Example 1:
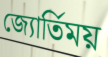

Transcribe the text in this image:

জ্যোর্তিময়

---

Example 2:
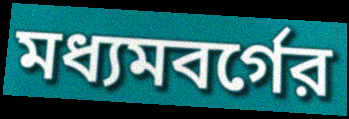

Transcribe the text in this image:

মধ্যমবর্গের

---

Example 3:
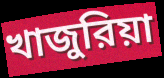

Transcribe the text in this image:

খাজুরিয়া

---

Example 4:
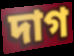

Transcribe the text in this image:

দাগ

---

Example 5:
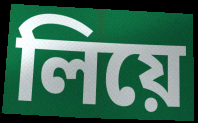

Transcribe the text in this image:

লিয়ে